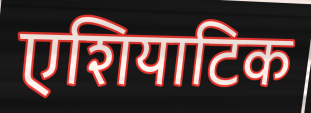
एशियाटिक